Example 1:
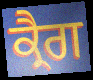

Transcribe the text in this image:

ਕ੍ਰੈਗ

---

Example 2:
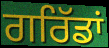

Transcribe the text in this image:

ਗਰਿੱਡਾਂ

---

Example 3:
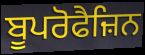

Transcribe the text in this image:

ਬੂਪਰੋਫੈਜ਼ਿਨ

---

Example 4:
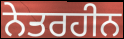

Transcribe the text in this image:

ਨੇਤਰਹੀਨ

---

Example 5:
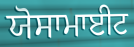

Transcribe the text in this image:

ਯੋਸਾਮਾਈਟ